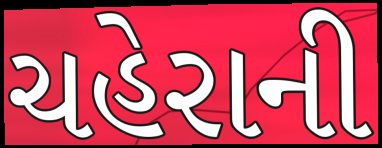
ચહેરાની